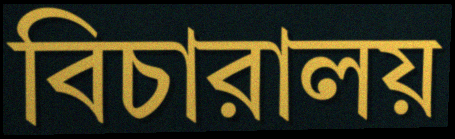
বিচারালয়